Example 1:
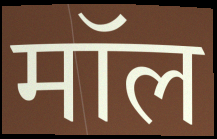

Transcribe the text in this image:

मॉल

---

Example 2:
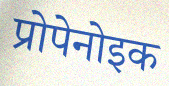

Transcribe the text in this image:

प्रोपेनोइक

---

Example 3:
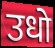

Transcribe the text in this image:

उधो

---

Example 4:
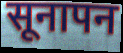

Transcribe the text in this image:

सूनापन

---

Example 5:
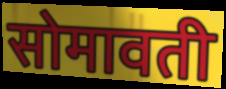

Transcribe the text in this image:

सोमावती